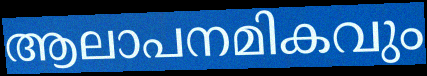
ആലാപനമികവും